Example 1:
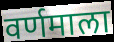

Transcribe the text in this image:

वर्णमाला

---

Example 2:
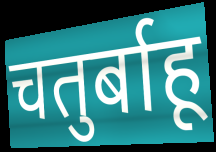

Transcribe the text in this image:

चतुर्बाहू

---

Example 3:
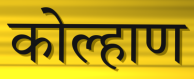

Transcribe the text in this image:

कोल्हाण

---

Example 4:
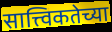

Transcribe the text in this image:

सात्त्विकतेच्या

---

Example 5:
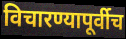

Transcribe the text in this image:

विचारण्यापूर्वीच